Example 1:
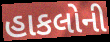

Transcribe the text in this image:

હાકલોની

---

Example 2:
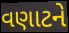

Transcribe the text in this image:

વણાટને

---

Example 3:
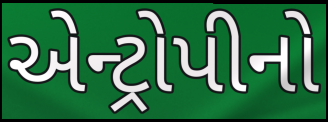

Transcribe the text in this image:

એન્ટ્રોપીનો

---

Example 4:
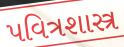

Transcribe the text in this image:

પવિત્રશાસ્ત્ર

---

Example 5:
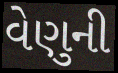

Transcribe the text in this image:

વેણુની